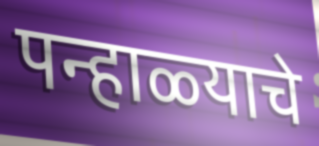
पन्हाळ्याचे